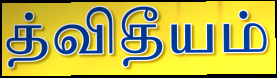
த்விதீயம்